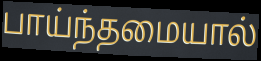
பாய்ந்தமையால்